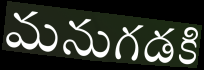
మనుగడకి